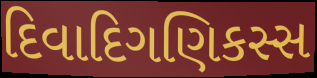
દિવાદિગણિકસ્સ